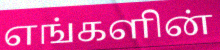
எங்களின்